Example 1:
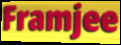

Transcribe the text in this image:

Framjee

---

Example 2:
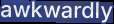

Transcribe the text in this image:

awkwardly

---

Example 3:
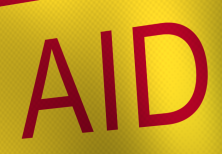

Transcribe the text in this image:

AID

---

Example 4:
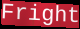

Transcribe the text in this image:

Fright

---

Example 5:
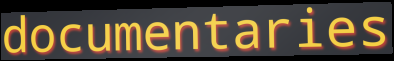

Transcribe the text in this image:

documentaries